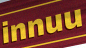
innuu